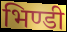
भिण्डी